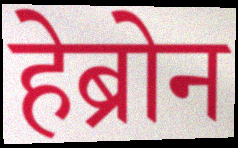
हेब्रोन